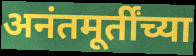
अनंतमूर्तींच्या